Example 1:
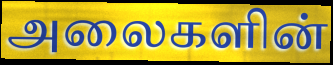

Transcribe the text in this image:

அலைகளின்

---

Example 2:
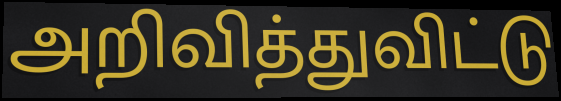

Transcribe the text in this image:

அறிவித்துவிட்டு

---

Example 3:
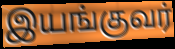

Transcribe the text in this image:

இயங்குவர்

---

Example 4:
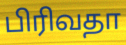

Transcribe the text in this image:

பிரிவதா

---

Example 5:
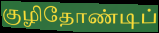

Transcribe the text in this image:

குழிதோண்டிப்